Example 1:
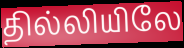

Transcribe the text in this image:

தில்லியிலே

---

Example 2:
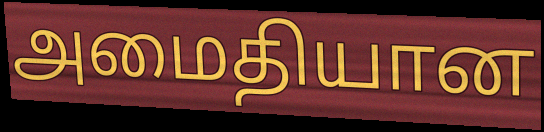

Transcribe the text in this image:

அமைதியான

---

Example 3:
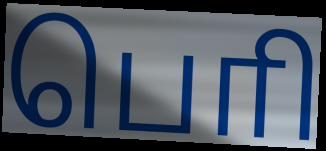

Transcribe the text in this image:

பெரி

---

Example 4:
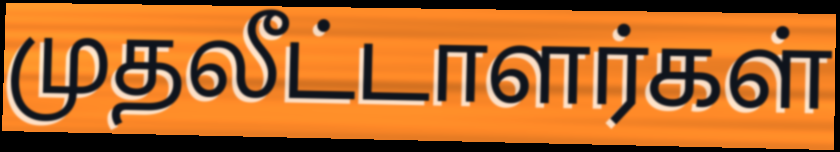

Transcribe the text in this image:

முதலீட்டாளர்கள்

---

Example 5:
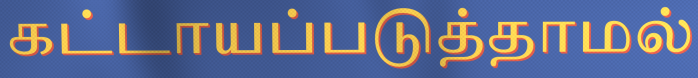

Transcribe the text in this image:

கட்டாயப்படுத்தாமல்